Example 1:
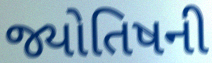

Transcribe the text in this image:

જ્યોતિષની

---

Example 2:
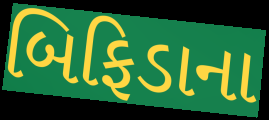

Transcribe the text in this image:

બિફિડાના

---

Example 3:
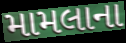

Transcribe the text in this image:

મામલાના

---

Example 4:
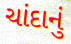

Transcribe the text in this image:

ચાંદાનું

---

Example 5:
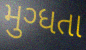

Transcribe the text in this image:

મુગ્ધતા